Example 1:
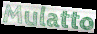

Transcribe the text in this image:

Mulatto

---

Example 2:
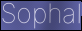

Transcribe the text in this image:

Sophal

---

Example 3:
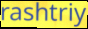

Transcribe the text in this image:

rashtriy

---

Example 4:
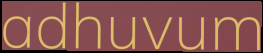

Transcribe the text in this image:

adhuvum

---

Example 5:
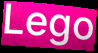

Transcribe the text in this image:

Lego